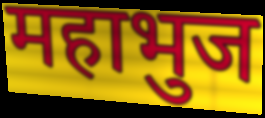
महाभुज